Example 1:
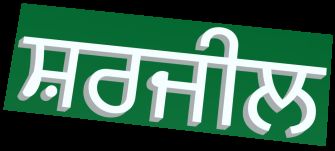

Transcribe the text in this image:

ਸ਼ਰਜੀਲ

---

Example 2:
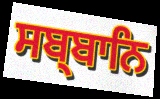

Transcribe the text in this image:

ਸਬ੍ਬਾਨਿ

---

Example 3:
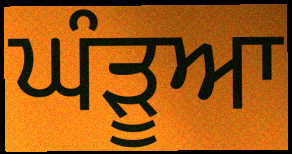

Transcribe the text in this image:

ਘੰੜੂਆ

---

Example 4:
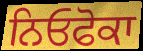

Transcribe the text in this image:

ਨਿਓਫੋਕਾ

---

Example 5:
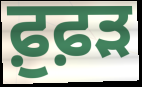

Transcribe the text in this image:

ਫ਼ੁਫ਼ੜ